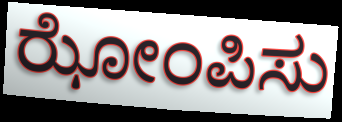
ಝೋಂಪಿಸು